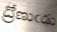
ద్రోణుఁడు